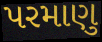
પરમાણુ